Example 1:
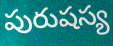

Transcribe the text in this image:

పురుషస్య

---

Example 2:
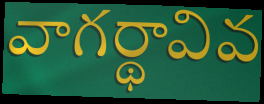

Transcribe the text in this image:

వాగర్థావివ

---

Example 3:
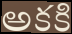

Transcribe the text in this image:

అకకి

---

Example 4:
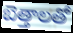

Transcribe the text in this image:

బెత్తాలతో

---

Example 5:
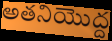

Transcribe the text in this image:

అతనియొద్ద